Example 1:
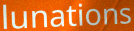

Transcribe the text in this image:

lunations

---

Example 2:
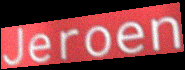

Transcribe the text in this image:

Jeroen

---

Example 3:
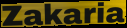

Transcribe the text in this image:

Zakaria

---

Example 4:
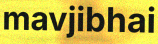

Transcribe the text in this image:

mavjibhai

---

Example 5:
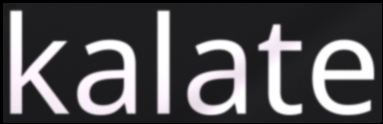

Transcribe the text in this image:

kalate